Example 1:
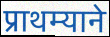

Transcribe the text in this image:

प्राथम्याने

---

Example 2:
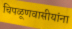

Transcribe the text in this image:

चिपळूणवासीयांना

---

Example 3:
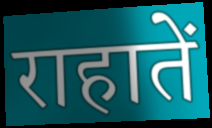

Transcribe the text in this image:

राहातें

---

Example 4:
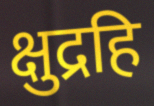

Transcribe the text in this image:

क्षुद्रहि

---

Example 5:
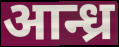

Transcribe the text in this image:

आन्ध्र